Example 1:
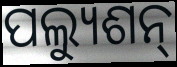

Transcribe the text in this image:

ପଲ୍ୟୁଶନ୍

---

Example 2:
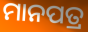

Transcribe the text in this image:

ମାନପତ୍ର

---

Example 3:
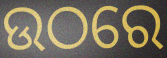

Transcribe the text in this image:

ଉଠରେ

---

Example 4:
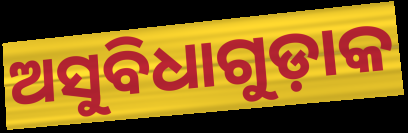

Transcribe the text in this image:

ଅସୁବିଧାଗୁଡ଼ାକ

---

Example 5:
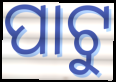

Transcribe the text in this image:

ପାଟୁ